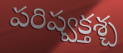
పరిష్వక్తశ్చ